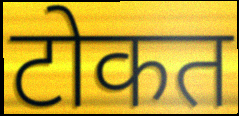
टोकत